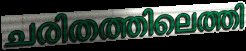
ചരിതത്തിലെത്തി